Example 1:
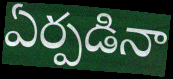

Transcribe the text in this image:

ఏర్పడినా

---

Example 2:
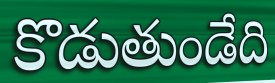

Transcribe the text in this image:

కొడుతుండేది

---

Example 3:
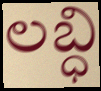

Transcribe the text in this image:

లబ్ధి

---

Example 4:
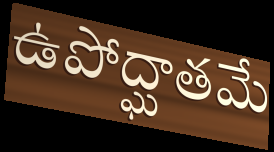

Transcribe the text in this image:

ఉపోద్ఘాతమే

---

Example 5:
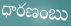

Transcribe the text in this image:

ధారణంబు